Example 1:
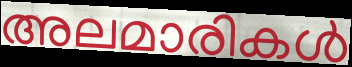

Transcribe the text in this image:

അലമാരികൾ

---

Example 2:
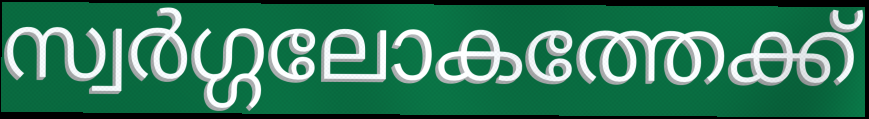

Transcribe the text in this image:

സ്വർഗ്ഗലോകത്തേക്ക്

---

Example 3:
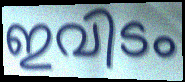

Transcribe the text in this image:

ഇവിടം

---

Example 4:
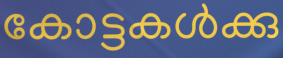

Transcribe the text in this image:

കോട്ടകൾക്കു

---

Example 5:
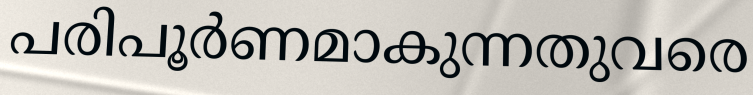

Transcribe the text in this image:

പരിപൂർണമാകുന്നതുവരെ